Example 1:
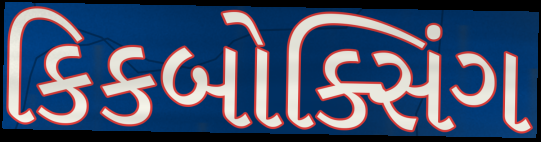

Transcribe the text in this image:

કિકબોક્સિંગ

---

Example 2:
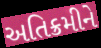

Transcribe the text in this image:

અતિક્રમીને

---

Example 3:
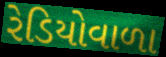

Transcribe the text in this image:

રેડિયોવાળા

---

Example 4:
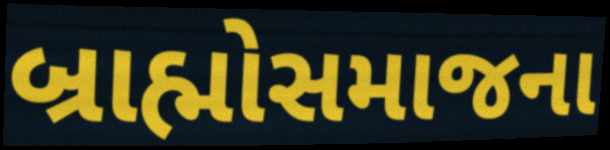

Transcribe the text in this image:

બ્રાહ્મોસમાજના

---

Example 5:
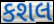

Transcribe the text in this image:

કશલ